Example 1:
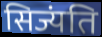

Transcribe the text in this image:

सिज्यंति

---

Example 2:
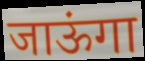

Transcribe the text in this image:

जाऊंगा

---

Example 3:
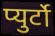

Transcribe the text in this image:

प्युर्टो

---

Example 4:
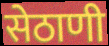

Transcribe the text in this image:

सेठाणी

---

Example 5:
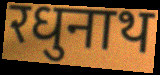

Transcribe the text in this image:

रधुनाथ